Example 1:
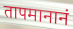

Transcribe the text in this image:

तापमानानं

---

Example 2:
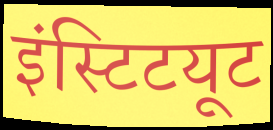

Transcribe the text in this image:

इंस्टिटयूट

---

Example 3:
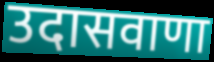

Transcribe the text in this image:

उदासवाणा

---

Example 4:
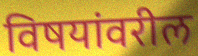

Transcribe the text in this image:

विषयांवरील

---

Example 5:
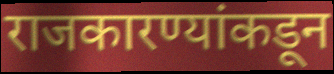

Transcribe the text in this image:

राजकारण्यांकडून